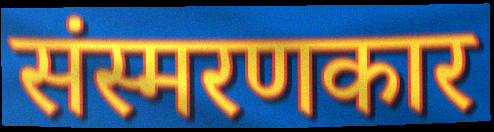
संस्मरणकार